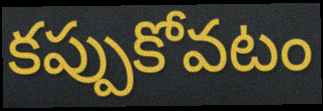
కప్పుకోవటం